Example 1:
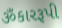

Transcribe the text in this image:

ૐકારરૂપી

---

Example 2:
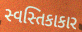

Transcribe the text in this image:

સ્વસ્તિકાકાર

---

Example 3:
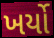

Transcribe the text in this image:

ખર્યો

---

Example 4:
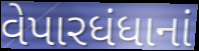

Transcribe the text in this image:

વેપારધંધાનાં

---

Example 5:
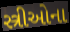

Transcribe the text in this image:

સ્ત્રીઓના